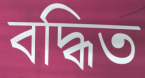
বদ্ধিত